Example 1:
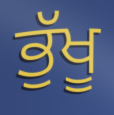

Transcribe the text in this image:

ਭੁੱਖੂ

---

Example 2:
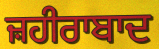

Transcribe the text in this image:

ਜ਼ਹੀਰਾਬਾਦ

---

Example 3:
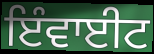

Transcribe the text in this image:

ਇੰਵਾਈਟ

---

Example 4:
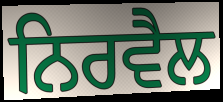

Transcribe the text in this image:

ਨਿਰਵੈਲ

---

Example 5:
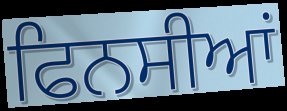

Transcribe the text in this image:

ਫਿਨਸੀਆਂ